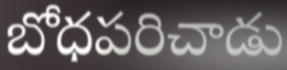
బోధపరిచాడు